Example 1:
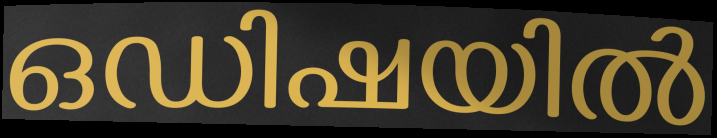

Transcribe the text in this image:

ഒഡിഷയിൽ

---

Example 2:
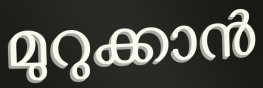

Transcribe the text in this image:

മുറുക്കാൻ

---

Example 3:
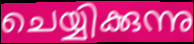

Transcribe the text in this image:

ചെയ്യിക്കുന്നു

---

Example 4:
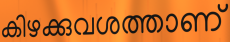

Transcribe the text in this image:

കിഴക്കുവശത്താണ്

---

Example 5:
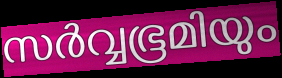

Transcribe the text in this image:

സർവ്വഭൂമിയും